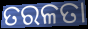
ତରଳତା